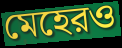
মেহেরও